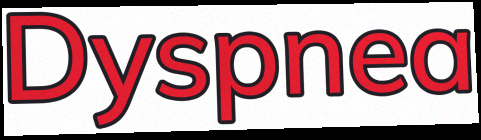
Dyspnea